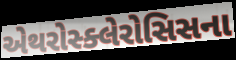
એથરોસ્ક્લેરોસિસના